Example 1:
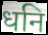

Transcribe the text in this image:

धनि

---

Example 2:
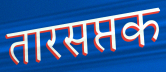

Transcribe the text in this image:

तारसप्तक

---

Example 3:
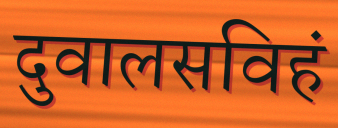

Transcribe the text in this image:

दुवालसविहं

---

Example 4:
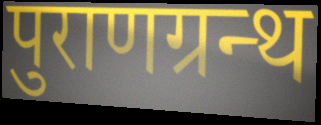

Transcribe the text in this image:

पुराणग्रन्थ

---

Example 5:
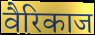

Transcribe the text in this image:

वैरिकाज